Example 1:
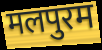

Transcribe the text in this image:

मलपुरम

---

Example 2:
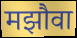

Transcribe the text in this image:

मझौवा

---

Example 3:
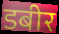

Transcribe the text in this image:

डबीर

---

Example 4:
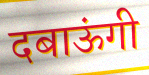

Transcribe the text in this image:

दबाऊंगी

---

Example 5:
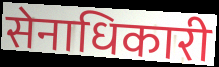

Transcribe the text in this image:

सेनाधिकारी